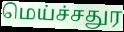
மெய்ச்சதுர